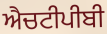
ਐਚਟੀਪੀਬੀ